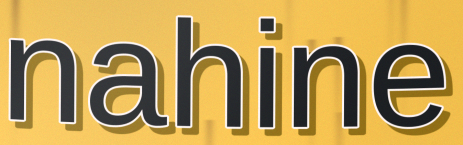
nahine